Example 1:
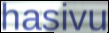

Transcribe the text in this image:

hasivu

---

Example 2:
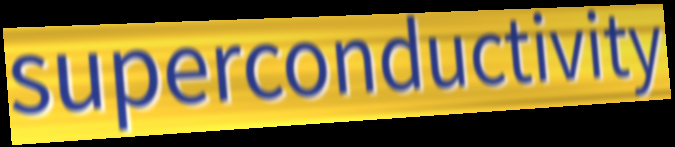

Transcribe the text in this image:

superconductivity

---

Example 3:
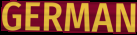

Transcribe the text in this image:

GERMAN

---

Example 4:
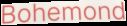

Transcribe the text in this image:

Bohemond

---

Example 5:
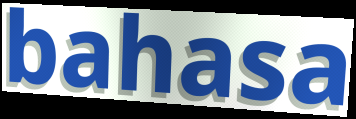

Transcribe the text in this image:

bahasa